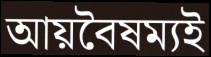
আয়বৈষম্যই